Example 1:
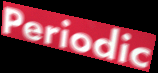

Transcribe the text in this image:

Periodic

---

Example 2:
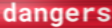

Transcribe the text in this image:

dangers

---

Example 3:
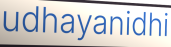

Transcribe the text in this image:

udhayanidhi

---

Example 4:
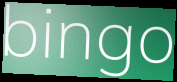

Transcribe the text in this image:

bingo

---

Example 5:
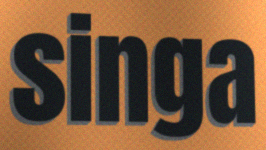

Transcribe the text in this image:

singa